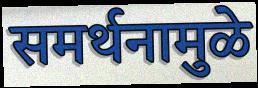
समर्थनामुळे